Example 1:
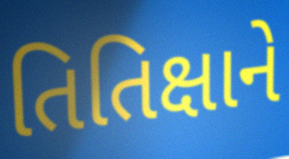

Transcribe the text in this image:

તિતિક્ષાને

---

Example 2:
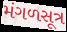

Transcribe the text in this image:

મંગળસૂત્ર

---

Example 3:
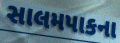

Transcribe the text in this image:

સાલમપાકના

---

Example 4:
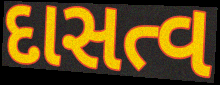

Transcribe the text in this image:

દાસત્વ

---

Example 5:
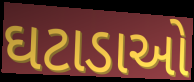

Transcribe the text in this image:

ઘટાડાઓ